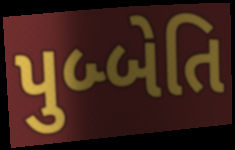
પુબ્બેતિ